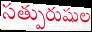
సత్పురుషుల